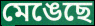
মেঙেছে